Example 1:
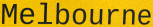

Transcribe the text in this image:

Melbourne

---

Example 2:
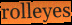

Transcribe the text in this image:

rolleyes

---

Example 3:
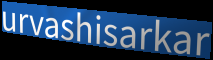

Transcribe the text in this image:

urvashisarkar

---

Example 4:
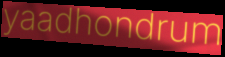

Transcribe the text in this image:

yaadhondrum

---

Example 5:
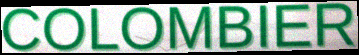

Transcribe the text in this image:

COLOMBIER